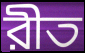
রীত